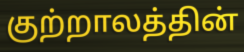
குற்றாலத்தின்